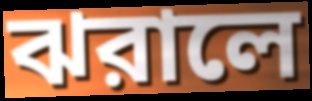
ঝরালে